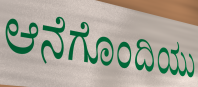
ಆನೆಗೊಂದಿಯು